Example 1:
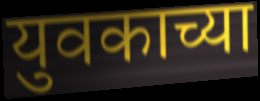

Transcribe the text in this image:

युवकाच्या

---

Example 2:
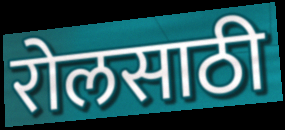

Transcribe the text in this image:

रोलसाठी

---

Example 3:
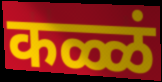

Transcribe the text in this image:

कळ्ळं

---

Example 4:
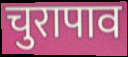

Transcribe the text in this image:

चुरापाव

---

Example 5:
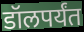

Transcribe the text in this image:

डॉलपर्यंत